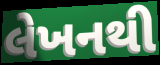
લેખનથી